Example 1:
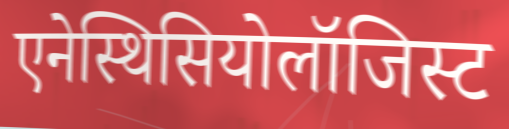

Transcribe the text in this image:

एनेस्थिसियोलॉजिस्ट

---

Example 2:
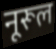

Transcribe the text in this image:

नूरूल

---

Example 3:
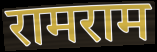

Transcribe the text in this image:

रामराम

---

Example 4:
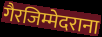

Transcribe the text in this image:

गैरजिम्मेदराना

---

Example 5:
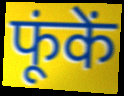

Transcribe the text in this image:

फूंकें